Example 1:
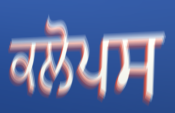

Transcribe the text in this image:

ਕਲੋਪਸ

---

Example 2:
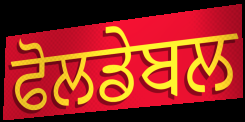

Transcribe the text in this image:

ਫੋਲਡੇਬਲ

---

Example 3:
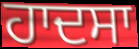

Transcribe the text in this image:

ਹਾਦਸਾ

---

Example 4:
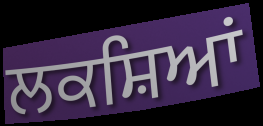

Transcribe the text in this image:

ਲਕਸ਼ਿਆਂ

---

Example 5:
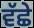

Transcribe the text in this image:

ਵੱਛੇ